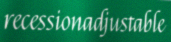
recessionadjustable